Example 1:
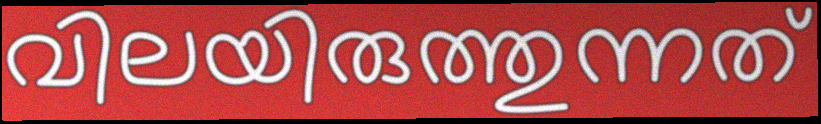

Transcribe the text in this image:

വിലയിരുത്തുന്നത്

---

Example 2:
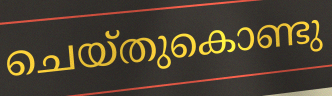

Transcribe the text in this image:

ചെയ്തുകൊണ്ടു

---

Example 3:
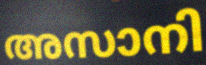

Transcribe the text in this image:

അസാനി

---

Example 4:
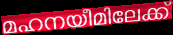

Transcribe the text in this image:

മഹനയീമിലേക്ക്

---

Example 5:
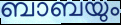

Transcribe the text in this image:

ബാബയും